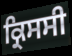
ਕ੍ਰਿਸਸੀ